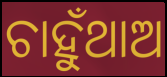
ଚାହୁଁଥାଅ